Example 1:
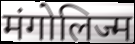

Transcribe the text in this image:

मंगोलिज्म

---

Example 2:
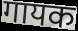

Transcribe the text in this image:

गायक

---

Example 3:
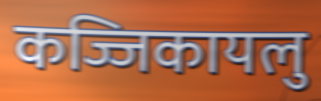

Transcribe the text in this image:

कज्जिकायलु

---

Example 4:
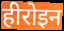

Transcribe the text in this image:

हीरोइन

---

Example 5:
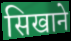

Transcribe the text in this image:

सिखाने